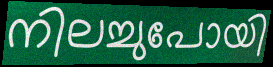
നിലച്ചുപോയി